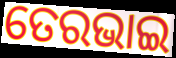
ତେରଭାଇ